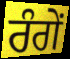
ਰੰਗੇਂ